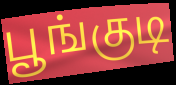
பூங்குடி